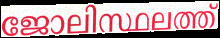
ജോലിസ്ഥലത്ത്